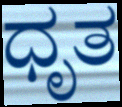
ಧೃತ